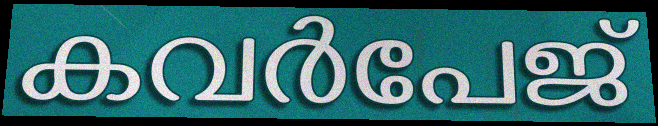
കവർപേജ്